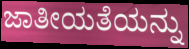
ಜಾತೀಯತೆಯನ್ನು